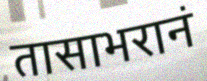
तासाभरानं